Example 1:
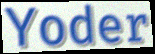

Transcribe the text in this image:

Yoder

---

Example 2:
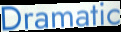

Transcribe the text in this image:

Dramatic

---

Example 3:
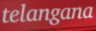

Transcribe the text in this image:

telangana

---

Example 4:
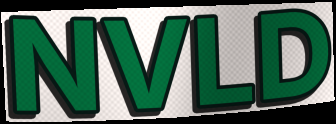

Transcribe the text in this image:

NVLD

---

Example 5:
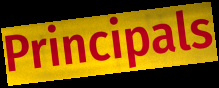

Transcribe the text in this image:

Principals